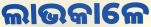
ଲାଭକାଳେ